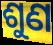
ଶୁଣ